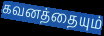
கவனத்தையும்